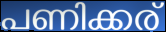
പണിക്കര്